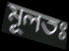
মূলতঃ